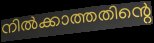
നിൽക്കാത്തതിന്റെ